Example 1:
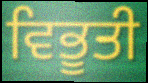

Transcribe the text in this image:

ਵਿਭੂਤੀ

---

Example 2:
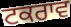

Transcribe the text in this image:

ਟਕਰਾਵ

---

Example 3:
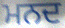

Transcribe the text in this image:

ਮਨਦ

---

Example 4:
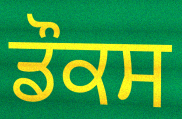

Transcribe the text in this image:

ਡੌਕਸ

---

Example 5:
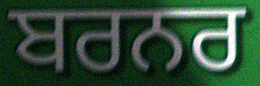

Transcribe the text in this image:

ਬਰਨਰ